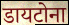
डायटोना